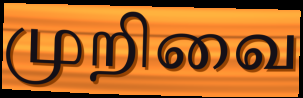
முறிவை